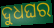
ଦୁଧଘର